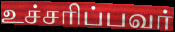
உச்சரிப்பவர்